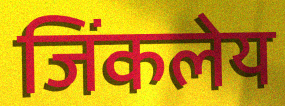
जिंकलेय